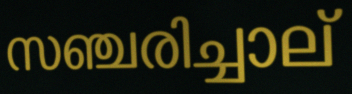
സഞ്ചരിച്ചാല്